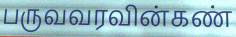
பருவவரவின்கண்